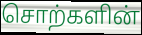
சொற்களின்